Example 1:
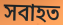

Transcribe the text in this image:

সবাহত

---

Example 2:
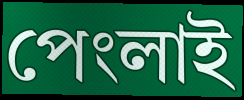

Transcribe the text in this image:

পেংলাই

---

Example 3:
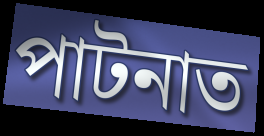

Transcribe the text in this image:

পাটনাত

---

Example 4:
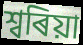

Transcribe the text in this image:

শ্বৰিয়া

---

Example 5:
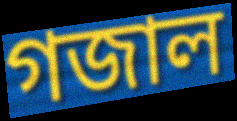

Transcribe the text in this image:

গজাল